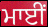
ਮਾਈਂ